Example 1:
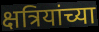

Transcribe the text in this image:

क्षत्रियांच्या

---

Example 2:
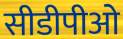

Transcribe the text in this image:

सीडीपीओ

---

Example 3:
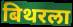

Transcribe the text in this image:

बिथरला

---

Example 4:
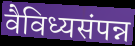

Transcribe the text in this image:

वैविध्यसंपन्न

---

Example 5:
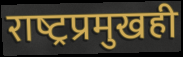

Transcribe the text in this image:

राष्ट्रप्रमुखही